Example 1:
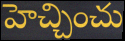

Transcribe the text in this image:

హెచ్చించు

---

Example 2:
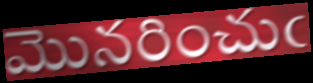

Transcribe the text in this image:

మొనరించుఁ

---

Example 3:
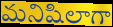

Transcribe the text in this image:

మనిషిలాగా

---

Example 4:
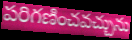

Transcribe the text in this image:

పరిగణించవచ్చును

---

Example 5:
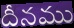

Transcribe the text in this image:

దీనము